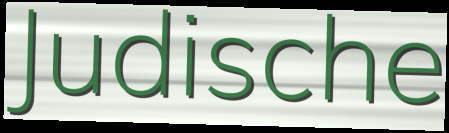
Judische